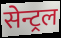
सेन्ट्रल